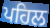
ਪਹਿਲ